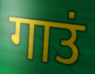
गाउं